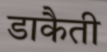
डाकैती